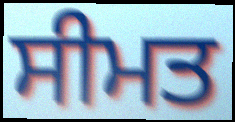
ਸੀਮਤ